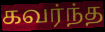
கவர்ந்த